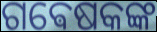
ଗଵେଷକଙ୍କ